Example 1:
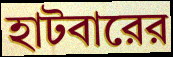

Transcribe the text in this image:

হাটবারের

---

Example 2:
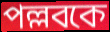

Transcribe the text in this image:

পল্লবকে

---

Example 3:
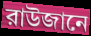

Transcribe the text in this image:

রাউজানে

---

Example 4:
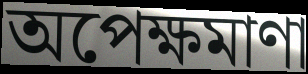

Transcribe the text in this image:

অপেক্ষমাণা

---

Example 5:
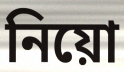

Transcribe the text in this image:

নিয়ো